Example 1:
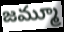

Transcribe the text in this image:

జమ్మూ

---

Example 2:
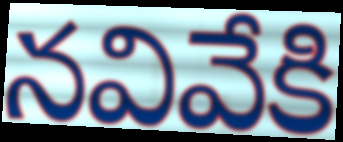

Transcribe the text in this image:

నవివేకి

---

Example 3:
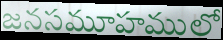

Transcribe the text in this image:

జనసమూహములో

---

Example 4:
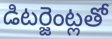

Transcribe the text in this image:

డిటర్జెంట్లతో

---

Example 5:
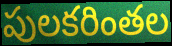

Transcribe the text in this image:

పులకరింతల